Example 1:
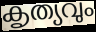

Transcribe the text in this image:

കൃത്യവും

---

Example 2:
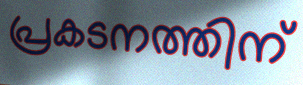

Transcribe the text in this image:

പ്രകടനത്തിന്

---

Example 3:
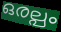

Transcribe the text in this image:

ഒരല്പം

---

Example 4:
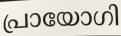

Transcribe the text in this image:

പ്രായോഗി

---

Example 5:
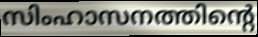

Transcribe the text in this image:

സിംഹാസനത്തിന്റെ